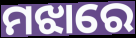
ମଝାରେ